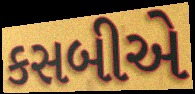
કસબીએ